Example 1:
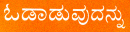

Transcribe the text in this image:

ಓಡಾಡುವುದನ್ನು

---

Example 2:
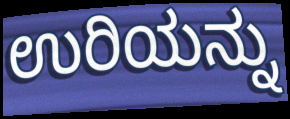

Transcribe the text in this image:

ಉರಿಯನ್ನು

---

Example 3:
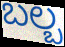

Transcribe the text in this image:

ಬಲ್ಬ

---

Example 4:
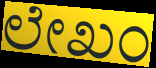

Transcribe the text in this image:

ಲೇಖಂ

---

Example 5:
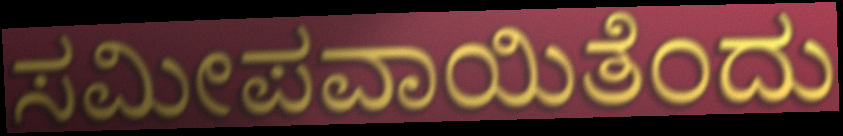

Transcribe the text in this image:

ಸಮೀಪವಾಯಿತೆಂದು